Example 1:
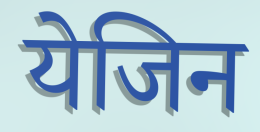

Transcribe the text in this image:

येजिन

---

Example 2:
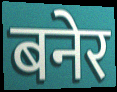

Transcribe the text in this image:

बनेर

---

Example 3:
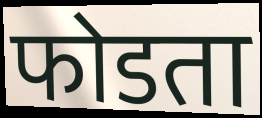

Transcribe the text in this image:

फोडता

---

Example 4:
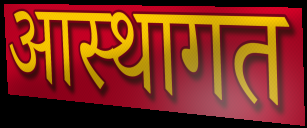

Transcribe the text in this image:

आस्थागत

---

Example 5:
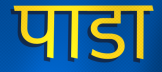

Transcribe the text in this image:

पाडा